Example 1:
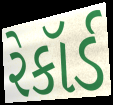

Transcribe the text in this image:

રેકૉર્ડ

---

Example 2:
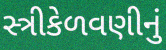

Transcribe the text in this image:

સ્ત્રીકેળવણીનું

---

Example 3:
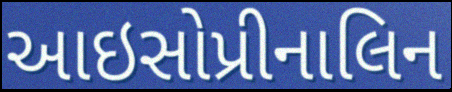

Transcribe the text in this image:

આઇસોપ્રીનાલિન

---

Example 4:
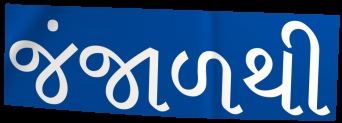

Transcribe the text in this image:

જંજાળથી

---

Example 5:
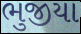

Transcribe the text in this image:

ભુજીયા